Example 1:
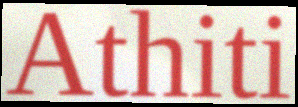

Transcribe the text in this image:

Athiti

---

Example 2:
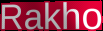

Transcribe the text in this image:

Rakho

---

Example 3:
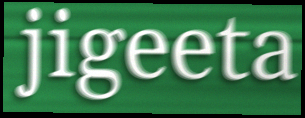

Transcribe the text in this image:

jigeeta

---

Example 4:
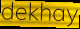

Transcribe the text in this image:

dekhay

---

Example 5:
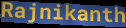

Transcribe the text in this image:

Rajnikanth